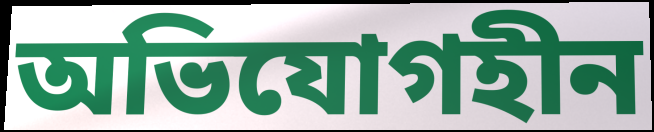
অভিযোগহীন